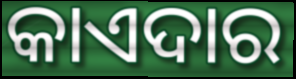
କାଏଦାର